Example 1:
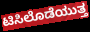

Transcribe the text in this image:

ಟಿಸಿಲೊಡೆಯುತ್ತ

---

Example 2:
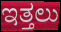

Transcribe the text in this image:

ಇತ್ತಲು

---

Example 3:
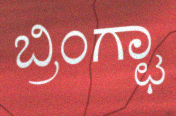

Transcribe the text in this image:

ಬ್ರಿಂಗ್ಟಾ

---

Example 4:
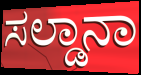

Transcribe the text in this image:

ಸಲ್ಡಾನಾ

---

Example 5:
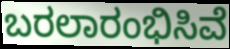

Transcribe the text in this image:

ಬರಲಾರಂಭಿಸಿವೆ